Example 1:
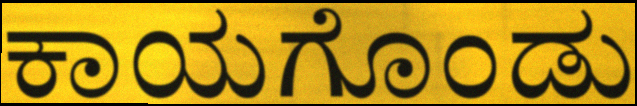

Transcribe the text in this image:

ಕಾಯಗೊಂಡು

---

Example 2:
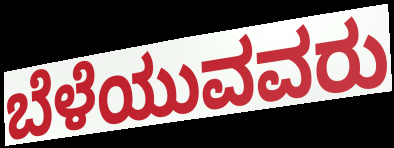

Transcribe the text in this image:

ಬೆಳೆಯುವವರು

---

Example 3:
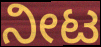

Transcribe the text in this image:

ನೀಟ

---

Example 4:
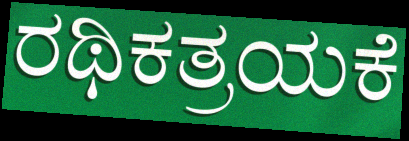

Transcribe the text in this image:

ರಥಿಕತ್ರಯಕೆ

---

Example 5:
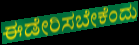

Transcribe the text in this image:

ಈಡೇರಿಸಬೇಕೆಂದು